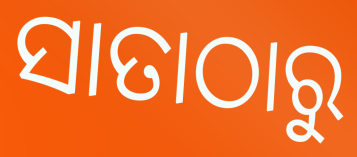
ସାତାଠାରୁ